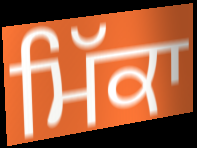
ਮਿੱਕਾ